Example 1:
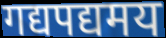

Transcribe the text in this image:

गद्यपद्यमय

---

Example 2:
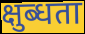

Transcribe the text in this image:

क्षुब्धता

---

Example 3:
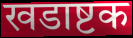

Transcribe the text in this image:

खडाष्टक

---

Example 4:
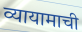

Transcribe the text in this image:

व्यायामाची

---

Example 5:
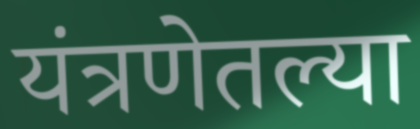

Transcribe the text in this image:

यंत्रणेतल्या